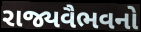
રાજ્યવૈભવનો